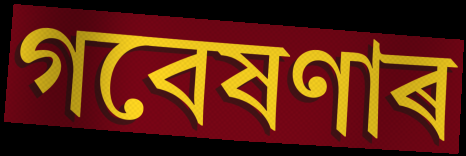
গবেষণাৰ